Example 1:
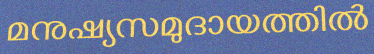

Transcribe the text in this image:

മനുഷ്യസമുദായത്തിൽ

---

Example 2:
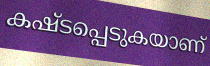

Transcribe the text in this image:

കഷ്ടപ്പെടുകയാണ്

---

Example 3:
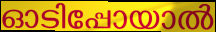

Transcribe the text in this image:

ഓടിപ്പോയാൽ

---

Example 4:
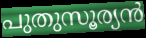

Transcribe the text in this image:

പുതുസൂര്യൻ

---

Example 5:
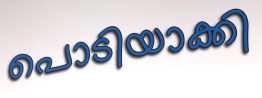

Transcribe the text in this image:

പൊടിയാക്കി